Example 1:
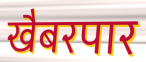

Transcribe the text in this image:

खैबरपार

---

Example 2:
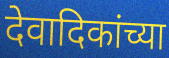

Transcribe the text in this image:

देवादिकांच्या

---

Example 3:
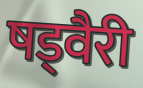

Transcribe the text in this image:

षड्वैरी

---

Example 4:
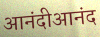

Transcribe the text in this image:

आनंदीआनंद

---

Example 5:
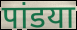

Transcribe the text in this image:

पांडया